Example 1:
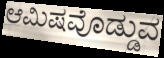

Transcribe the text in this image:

ಆಮಿಷವೊಡ್ಡುವ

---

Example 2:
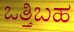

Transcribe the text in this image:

ಒತ್ತಿಬಹ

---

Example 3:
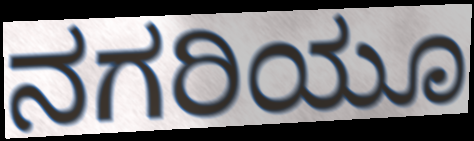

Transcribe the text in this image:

ನಗರಿಯೂ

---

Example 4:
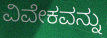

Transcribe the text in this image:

ವಿವೇಕವನ್ನು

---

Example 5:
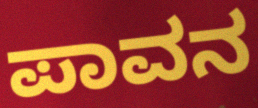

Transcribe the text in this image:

ಪಾವನ